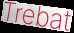
Trebat